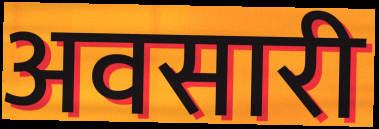
अवसारी